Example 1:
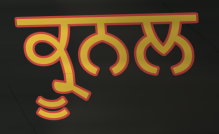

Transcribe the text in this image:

ਕ੍ਰੂਨਲ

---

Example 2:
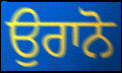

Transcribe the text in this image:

ਉਰਾਨੋ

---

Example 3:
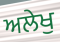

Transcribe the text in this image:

ਅਲੇਖੁ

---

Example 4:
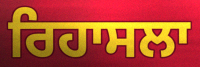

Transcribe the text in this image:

ਰਿਹਾਸਲਾ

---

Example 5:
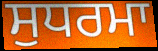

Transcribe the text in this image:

ਸੁਧਰਮਾ